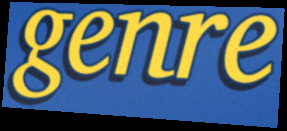
genre